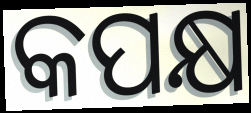
କପକ୍ଷ